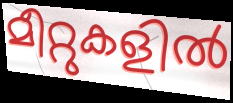
മീറ്റുകളിൽ